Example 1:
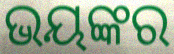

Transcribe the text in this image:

ଭୟଙ୍କର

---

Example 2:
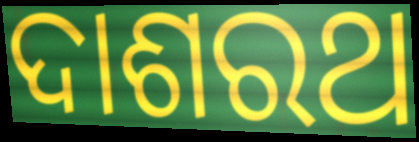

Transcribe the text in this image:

ଦାଶରଥ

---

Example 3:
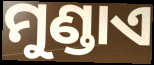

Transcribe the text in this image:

ମୁଣ୍ଡାଏ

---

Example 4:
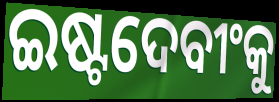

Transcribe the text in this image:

ଇଷ୍ଟଦେବୀଂକୁ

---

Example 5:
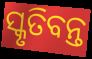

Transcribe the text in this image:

ସ୍କୃତିବନ୍ତ